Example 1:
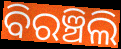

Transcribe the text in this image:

ବିରଞ୍ଚିଲି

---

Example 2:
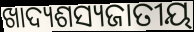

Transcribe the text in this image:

ଖାଦ୍ୟଶସ୍ୟଜାତୀୟ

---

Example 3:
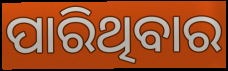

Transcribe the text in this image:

ପାରିଥିବାର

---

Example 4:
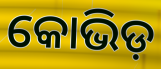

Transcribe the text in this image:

କୋଭିଡ଼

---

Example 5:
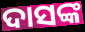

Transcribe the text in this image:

ଦାସଙ୍କ